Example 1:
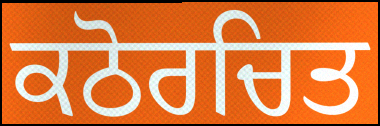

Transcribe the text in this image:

ਕਠੋਰਚਿਤ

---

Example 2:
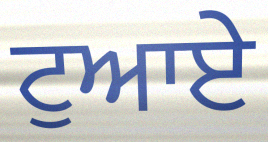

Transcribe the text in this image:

ਟੁਆਏ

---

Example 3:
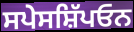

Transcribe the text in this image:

ਸਪੇਸਸ਼ਿੱਪਓਨ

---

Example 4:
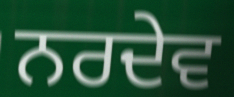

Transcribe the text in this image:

ਨਰਦੇਵ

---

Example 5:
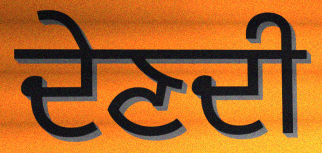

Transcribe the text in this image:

ਦੇਣਦੀ